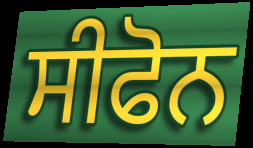
ਸੀਫੋਨ